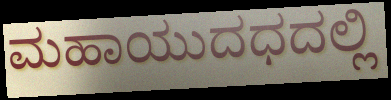
ಮಹಾಯುದಧದಲ್ಲಿ